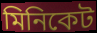
মিনিকেট